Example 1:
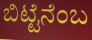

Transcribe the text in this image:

ಬಿಟ್ಟೆನೆಂಬ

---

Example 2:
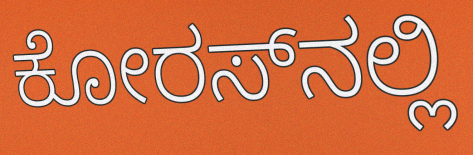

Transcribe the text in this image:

ಕೋರಸ್‌ನಲ್ಲಿ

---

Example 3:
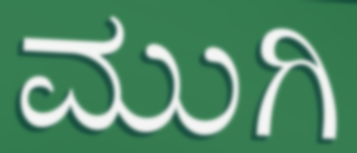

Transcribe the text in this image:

ಮುಗಿ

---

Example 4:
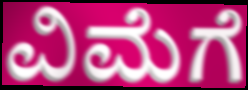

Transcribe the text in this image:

ವಿಮೆಗೆ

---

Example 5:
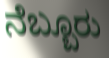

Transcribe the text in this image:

ನೆಬ್ಬೂರು